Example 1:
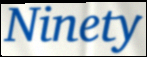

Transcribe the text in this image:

Ninety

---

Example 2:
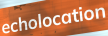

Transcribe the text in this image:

echolocation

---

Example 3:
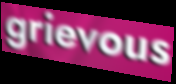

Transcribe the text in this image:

grievous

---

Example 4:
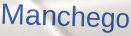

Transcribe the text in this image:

Manchego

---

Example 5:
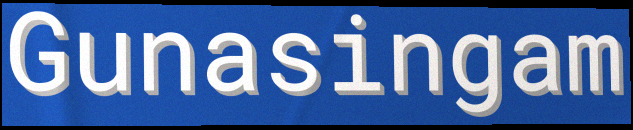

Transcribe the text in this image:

Gunasingam